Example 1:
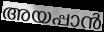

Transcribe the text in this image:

അയപ്പാൻ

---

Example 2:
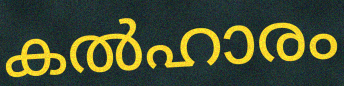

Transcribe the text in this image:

കൽഹാരം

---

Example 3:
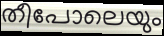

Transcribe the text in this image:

തീപോലെയും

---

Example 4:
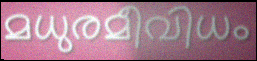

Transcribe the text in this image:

മധുരമീവിധം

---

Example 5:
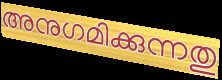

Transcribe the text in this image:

അനുഗമിക്കുന്നതു